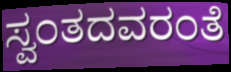
ಸ್ವಂತದವರಂತೆ